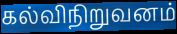
கல்விநிறுவனம்